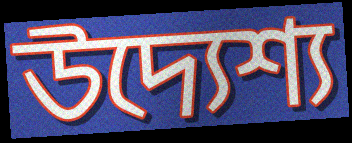
উদ্যেশ্য